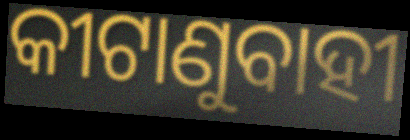
କୀଟାଣୁବାହୀ